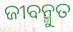
ଜୀବନ୍ମୁତ